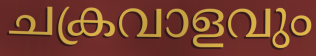
ചക്രവാളവും